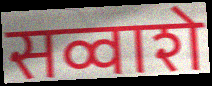
सव्वाशे